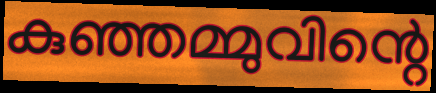
കുഞ്ഞമ്മുവിന്റെ